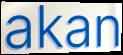
akan